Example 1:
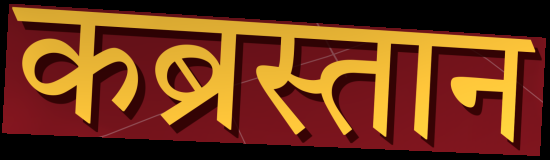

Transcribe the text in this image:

कब्रस्तान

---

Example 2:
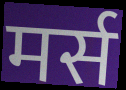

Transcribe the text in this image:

मर्स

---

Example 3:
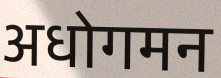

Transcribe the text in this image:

अधोगमन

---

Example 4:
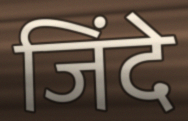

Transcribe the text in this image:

जिंदे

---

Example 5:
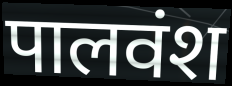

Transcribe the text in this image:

पालवंश